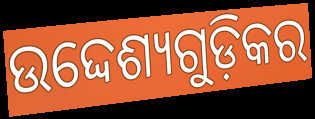
ଉଦ୍ଦେଶ୍ୟଗୁଡ଼ିକର